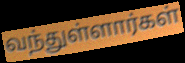
வந்துள்ளார்கள்